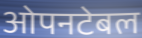
ओपनटेबल